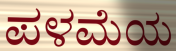
ಪಳಮೆಯ